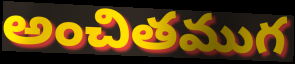
అంచితముగ